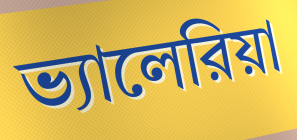
ভ্যালেরিয়া